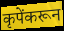
कृपेंकरून